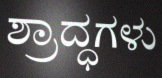
ಶ್ರಾದ್ಧಗಳು